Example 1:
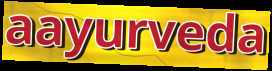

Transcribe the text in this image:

aayurveda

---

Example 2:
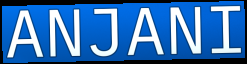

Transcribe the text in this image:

ANJANI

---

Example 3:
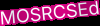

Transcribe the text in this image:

MOSRCSEd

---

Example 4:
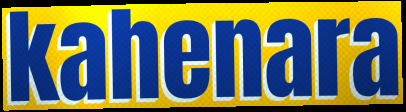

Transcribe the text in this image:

kahenara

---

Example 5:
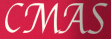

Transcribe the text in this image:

CMAS